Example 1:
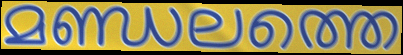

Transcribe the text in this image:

മണ്ഡലത്തെ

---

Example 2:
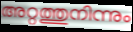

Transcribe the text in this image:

അറ്റത്തുനിന്നും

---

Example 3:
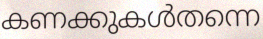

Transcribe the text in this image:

കണക്കുകൾതന്നെ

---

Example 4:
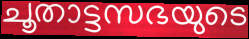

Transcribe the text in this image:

ചൂതാട്ടസഭയുടെ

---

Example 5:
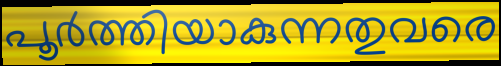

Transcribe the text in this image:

പൂർത്തിയാകുന്നതുവരെ